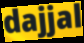
dajjal